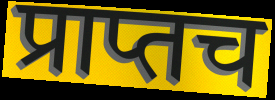
प्राप्तच